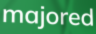
majored